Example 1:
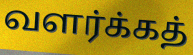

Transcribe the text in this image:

வளர்க்கத்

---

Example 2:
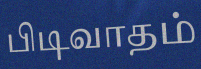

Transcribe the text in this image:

பிடிவாதம்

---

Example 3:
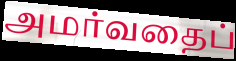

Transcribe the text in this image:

அமர்வதைப்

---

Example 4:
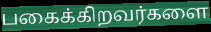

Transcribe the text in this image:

பகைக்கிறவர்களை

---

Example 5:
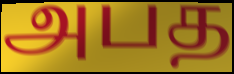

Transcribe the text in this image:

அபத